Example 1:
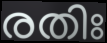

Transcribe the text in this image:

രതിഃ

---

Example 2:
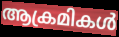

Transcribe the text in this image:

ആക്രമികൾ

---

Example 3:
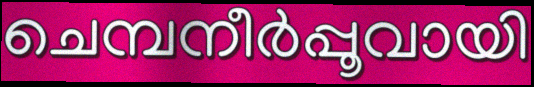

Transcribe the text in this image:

ചെമ്പനീർപ്പൂവായി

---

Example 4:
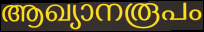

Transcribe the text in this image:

ആഖ്യാനരൂപം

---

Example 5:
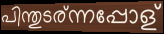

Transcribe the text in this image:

പിന്തുടര്ന്നപ്പോള്